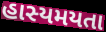
હાસ્યમયતા